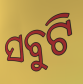
ସବୁଟି